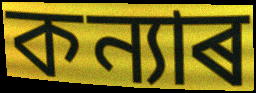
কন্যাৰ